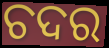
ଚଦର